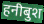
हनीबुश